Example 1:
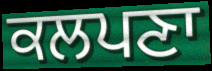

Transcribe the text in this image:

ਕਲਪਣਾ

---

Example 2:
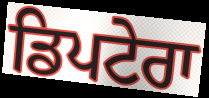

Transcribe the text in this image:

ਡਿਪਟੇਰਾ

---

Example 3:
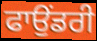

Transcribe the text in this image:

ਫਾਉਂਡਰੀ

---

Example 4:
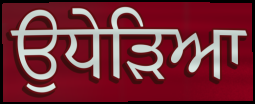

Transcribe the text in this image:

ਉਧੇੜਿਆ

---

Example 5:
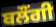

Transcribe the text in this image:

ਬਲੌਂਗੀ